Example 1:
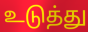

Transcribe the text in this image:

உடுத்து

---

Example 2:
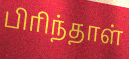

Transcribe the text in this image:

பிரிந்தாள்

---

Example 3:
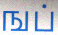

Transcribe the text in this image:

ஙப்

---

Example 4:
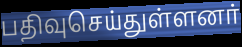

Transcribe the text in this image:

பதிவுசெய்துள்ளனர்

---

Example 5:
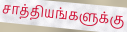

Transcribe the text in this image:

சாத்தியங்களுக்கு